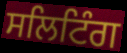
ਸਲਿਟਿੰਗ